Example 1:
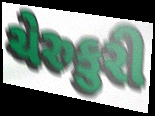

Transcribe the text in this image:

ચેરુકુરી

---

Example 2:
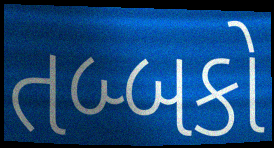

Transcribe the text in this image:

તબ્બકો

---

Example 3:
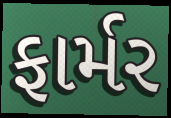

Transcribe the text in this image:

ફાર્મર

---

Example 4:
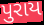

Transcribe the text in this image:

પુરાય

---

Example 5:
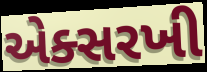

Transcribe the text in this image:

એક્સરખી